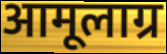
आमूलाग्र